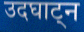
उदघाट्न